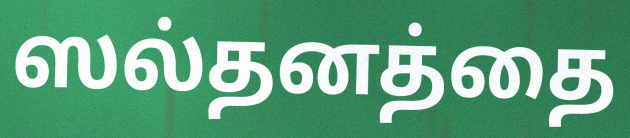
ஸல்தனத்தை